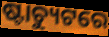
ଷ୍ଟାଚ୍ୟୁଟରେ